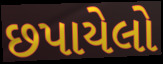
છપાયેલો